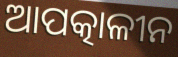
ଆପତ୍କାଳୀନ